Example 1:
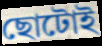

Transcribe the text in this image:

ছোটোই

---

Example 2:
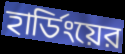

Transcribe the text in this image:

হার্ডিংয়ের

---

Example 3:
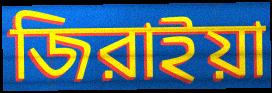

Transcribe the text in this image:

জিরাইয়া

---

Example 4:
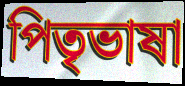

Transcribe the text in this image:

পিতৃভাষা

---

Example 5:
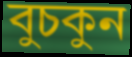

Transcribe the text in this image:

বুচকুন